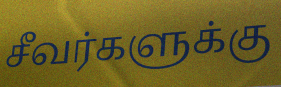
சீவர்களுக்கு